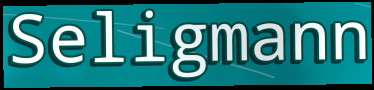
Seligmann